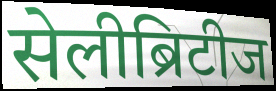
सेलीब्रिटीज